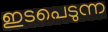
ഇടപെടുന്ന